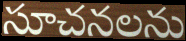
సూచనలను